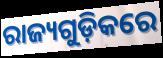
ରାଜ୍ୟଗୁଡ଼ିକରେ